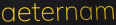
aeternam